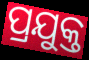
ପ୍ରଯୁକ୍ତ